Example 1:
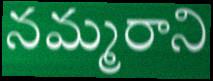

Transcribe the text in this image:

నమ్మరాని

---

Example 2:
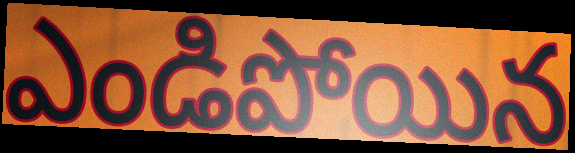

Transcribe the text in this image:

ఎండిపోయిన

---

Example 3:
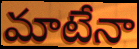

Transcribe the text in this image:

మాటేనా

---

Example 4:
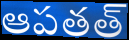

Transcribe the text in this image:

ఆపతత్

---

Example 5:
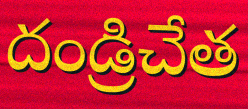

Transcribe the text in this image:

దండ్రిచేత